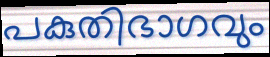
പകുതിഭാഗവും